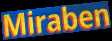
Miraben